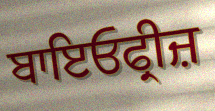
ਬਾਇਓਫ੍ਰੀਜ਼